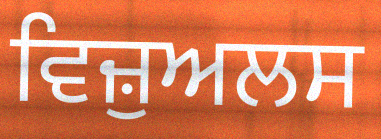
ਵਿਜ਼ੁਅਲਸ